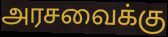
அரசவைக்கு